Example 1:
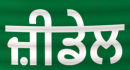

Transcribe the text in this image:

ਜ਼ੀਡੇਲ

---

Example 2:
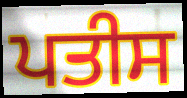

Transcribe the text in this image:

ਪਤੀਸ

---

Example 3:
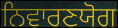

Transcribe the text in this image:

ਨਿਵਾਰਣਯੋਗ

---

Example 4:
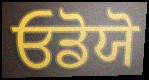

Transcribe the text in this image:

ਓਡੋਯੋ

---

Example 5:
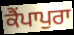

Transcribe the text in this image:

ਕੈਂਪਾਪੁਰਾ